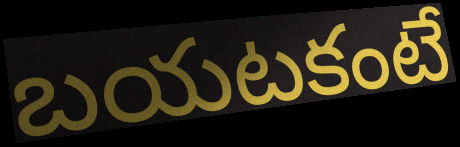
బయటకంటే